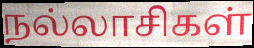
நல்லாசிகள்